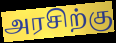
அரசிற்கு